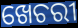
ଖେଚରୀ